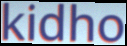
kidho